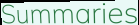
Summaries